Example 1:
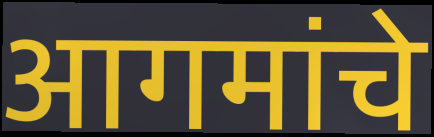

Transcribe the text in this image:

आगमांचे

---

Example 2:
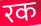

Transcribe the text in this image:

रक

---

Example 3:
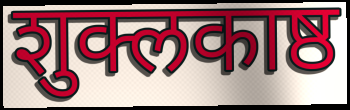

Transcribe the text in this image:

शुक्लकाष्ठ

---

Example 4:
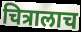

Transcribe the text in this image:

चित्रालाच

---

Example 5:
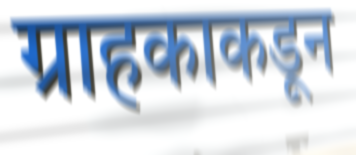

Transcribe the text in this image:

ग्राहकाकडून